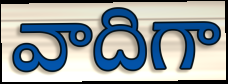
వాదిగా